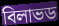
বিলাভড